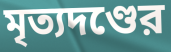
মৃত্যদণ্ডের